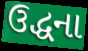
ઉદ્ધના